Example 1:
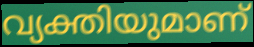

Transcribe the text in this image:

വ്യക്തിയുമാണ്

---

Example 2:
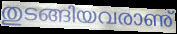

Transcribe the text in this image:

തുടങ്ങിയവരാണു്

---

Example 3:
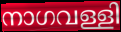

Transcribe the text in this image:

നാഗവള്ളി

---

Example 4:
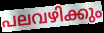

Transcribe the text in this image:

പലവഴിക്കും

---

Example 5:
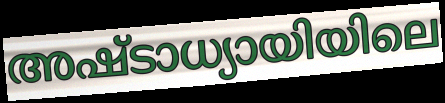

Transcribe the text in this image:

അഷ്ടാധ്യായിയിലെ